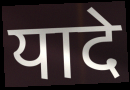
यादे